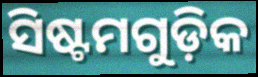
ସିଷ୍ଟମଗୁଡ଼ିକ